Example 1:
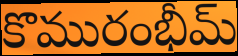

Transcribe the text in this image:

కొమురంభీమ్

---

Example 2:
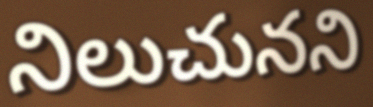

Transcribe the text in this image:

నిలుచునని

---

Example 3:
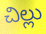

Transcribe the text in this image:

చిల్లు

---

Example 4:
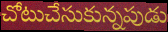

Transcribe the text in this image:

చోటుచేసుకున్నపుడు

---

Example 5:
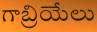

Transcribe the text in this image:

గాబ్రియేలు